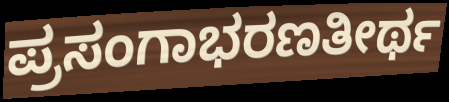
ಪ್ರಸಂಗಾಭರಣತೀರ್ಥ